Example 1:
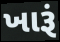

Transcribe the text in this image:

ખારૂં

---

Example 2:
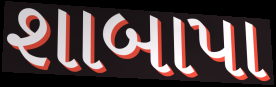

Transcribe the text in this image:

શાબાપા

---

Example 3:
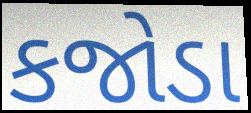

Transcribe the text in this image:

કજોડા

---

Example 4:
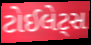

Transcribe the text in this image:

ટોઈલેટ્સ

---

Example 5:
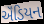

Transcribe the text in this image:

ઍંડિયન